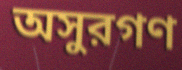
অসুরগণ